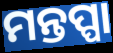
ମନ୍ତପ୍ପା